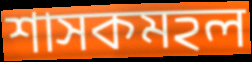
শাসকমহল